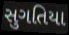
સુગતિયા